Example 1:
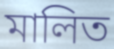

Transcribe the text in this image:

মালিত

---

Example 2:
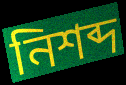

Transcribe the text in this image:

নিশব্দ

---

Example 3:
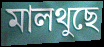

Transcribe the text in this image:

মালথুছে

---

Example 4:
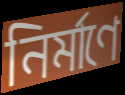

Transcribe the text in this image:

নিৰ্মাণে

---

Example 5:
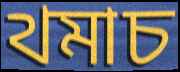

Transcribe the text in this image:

থমাচ